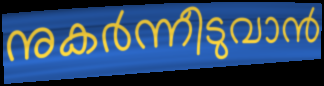
നുകർന്നീടുവാൻ